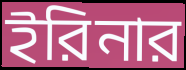
ইরিনার